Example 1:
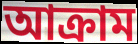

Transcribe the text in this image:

আক্রাম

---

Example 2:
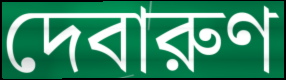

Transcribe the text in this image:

দেবারুণ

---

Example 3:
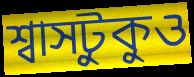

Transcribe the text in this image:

শ্বাসটুকুও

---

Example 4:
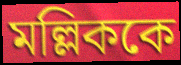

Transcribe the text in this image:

মল্লিককে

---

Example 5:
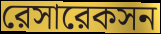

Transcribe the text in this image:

রেসারেকসন